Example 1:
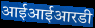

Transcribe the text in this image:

आईआईआरडी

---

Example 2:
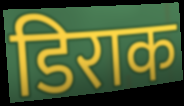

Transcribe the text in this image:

डिराक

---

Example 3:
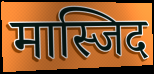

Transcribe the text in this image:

मास्जिद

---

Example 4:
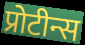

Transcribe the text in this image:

प्रोटीन्स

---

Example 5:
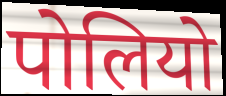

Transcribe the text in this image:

पोलियो